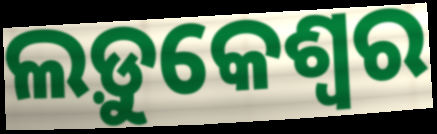
ଲଡ଼ୁକେଶ୍ୱର